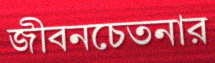
জীবনচেতনার